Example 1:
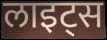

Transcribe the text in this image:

लाइट्स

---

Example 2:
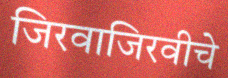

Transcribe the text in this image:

जिरवाजिरवीचे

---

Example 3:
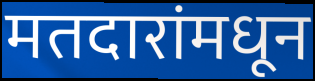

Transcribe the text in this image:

मतदारांमधून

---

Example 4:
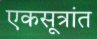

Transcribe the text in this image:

एकसूत्रांत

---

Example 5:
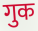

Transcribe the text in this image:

गुक